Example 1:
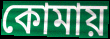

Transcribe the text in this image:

কোমায়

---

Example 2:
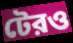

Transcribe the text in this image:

টেরও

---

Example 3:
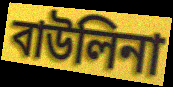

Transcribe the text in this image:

বাউলিনা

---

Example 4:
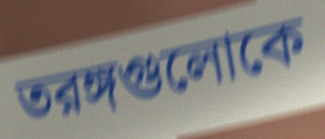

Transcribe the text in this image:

তরঙ্গগুলোকে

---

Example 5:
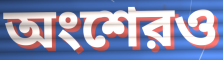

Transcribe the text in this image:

অংশেরও